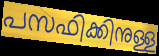
പസഫിക്കിനുള്ള